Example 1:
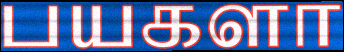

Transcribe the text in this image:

பயகளா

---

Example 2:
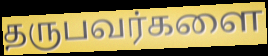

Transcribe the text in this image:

தருபவர்களை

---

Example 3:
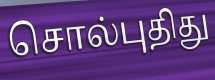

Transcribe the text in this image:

சொல்புதிது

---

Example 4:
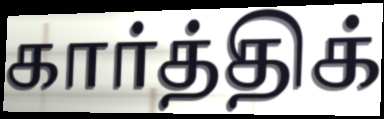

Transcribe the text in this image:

கார்த்திக்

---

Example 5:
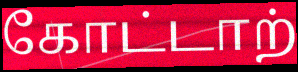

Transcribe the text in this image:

கோட்டாற்